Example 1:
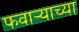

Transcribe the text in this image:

फवाऱ्याच्या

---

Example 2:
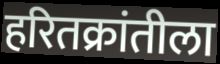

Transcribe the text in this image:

हरितक्रांतीला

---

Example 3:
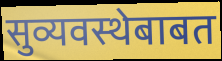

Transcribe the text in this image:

सुव्यवस्थेबाबत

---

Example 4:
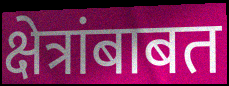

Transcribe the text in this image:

क्षेत्रांबाबत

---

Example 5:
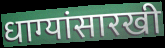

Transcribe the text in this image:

धाग्यांसारखी